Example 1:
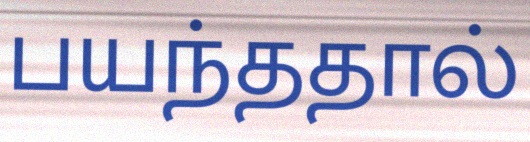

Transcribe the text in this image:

பயந்ததால்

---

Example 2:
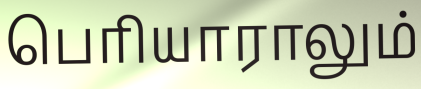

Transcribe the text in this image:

பெரியாராலும்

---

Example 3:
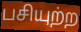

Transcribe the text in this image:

பசியுற்ற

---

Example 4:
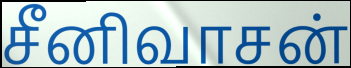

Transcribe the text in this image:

சீனிவாசன்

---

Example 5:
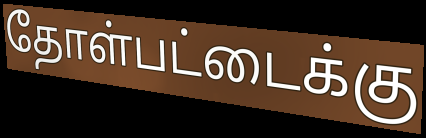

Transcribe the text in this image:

தோள்பட்டைக்கு